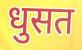
धुसत